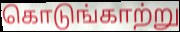
கொடுங்காற்று